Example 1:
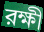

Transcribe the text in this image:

রক্ষী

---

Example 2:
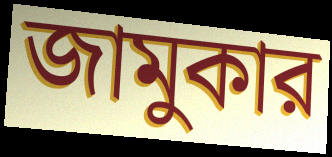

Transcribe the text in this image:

জামুকার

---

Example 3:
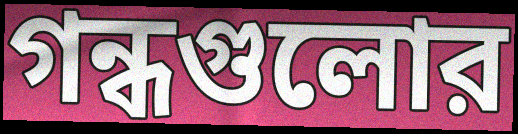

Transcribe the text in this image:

গন্ধগুলোর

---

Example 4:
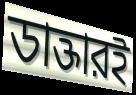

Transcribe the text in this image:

ডাক্তারই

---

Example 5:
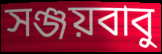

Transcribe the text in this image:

সঞ্জয়বাবু